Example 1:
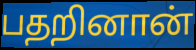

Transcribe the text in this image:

பதறினான்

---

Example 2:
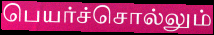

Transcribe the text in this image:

பெயர்ச்சொல்லும்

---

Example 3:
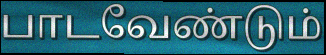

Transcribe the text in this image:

பாடவேண்டும்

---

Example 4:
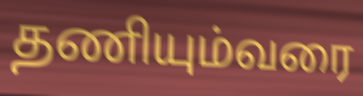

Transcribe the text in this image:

தணியும்வரை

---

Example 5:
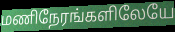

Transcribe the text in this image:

மணிநேரங்களிலேயே